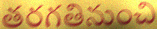
తరగతినుంచి